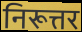
निरूत्तर